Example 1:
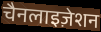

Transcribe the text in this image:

चैनलाइज़ेशन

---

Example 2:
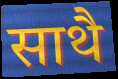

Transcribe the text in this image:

साथै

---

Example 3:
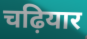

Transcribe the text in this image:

चढ़ियार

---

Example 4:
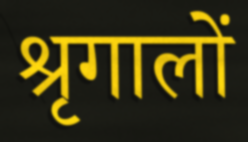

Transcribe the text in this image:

श्रृगालों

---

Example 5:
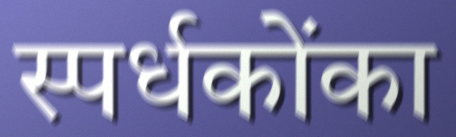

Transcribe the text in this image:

स्पर्धकोंका